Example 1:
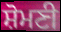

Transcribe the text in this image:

ਸ਼ੋਮਣੀ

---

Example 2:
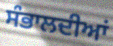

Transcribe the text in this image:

ਸੰਭਾਲਦੀਆਂ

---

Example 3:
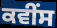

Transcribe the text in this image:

ਕਵੀਂਸ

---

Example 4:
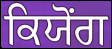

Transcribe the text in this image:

ਕਿਯੋਂਗ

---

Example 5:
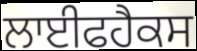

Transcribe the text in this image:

ਲਾਈਫਹੈਕਸ